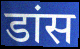
डांस